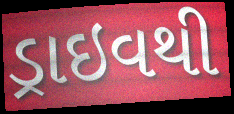
ડ્રાઇવથી